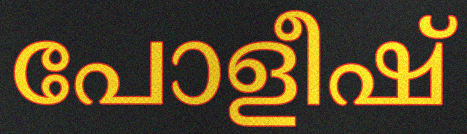
പോളീഷ്